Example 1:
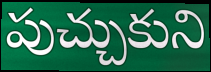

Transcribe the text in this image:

పుచ్చుకుని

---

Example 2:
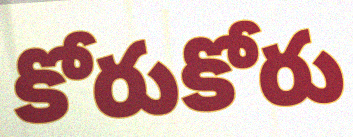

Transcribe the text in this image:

కోరుకోరు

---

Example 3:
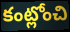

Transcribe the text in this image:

కంట్లోంచి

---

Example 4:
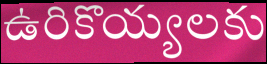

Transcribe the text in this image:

ఉరికొయ్యలకు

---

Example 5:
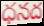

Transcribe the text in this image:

ధనద